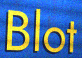
Blot